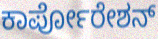
ಕಾರ್ಪೋರೇಶನ್